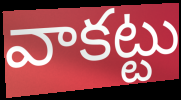
వాకట్టు